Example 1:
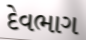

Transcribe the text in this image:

દેવભાગ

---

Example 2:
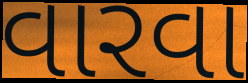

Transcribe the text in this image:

વારવા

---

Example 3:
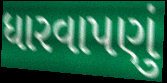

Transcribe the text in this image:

ધારવાપણું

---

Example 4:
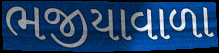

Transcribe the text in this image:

ભજીયાવાળા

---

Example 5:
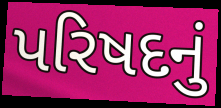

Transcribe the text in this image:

પરિષદનું